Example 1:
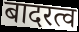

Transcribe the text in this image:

बादरत्व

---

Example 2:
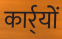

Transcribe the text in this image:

कार्र्यों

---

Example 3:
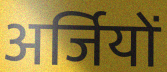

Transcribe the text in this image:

अर्जियों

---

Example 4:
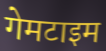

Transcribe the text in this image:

गेमटाइम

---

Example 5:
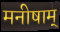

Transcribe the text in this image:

मनीषाम्